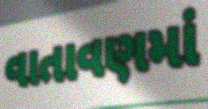
વાતાવણમાં